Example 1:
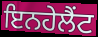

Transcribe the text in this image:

ਇਨਹੇਲੈਂਟ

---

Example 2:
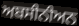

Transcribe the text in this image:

ਅਬਸੀਨੀਅਨ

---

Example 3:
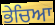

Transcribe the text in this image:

ਭੇਚਿਆ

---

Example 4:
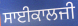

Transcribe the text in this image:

ਸਾਈਕਾਲਜੀ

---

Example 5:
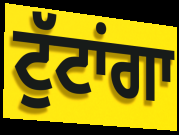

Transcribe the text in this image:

ਟੁੱਟਾਂਗਾ